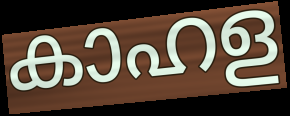
കാഹള